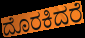
ದೊರಕಿದರೆ